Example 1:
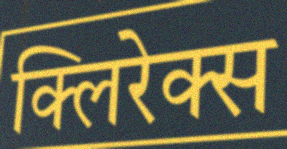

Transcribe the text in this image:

क्लिरेक्स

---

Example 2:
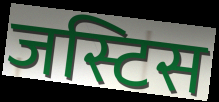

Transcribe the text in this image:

जस्‍टिस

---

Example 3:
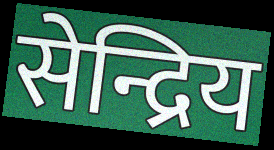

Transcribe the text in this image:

सेन्द्रिय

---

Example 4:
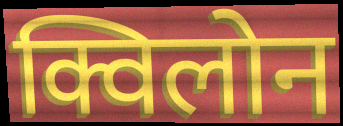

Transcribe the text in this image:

क्विलोन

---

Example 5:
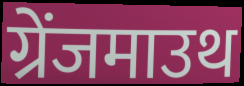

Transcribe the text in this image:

ग्रेंजमाउथ